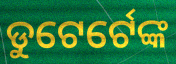
ଡୁଟେର୍ଟେଙ୍କ